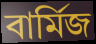
বাৰ্মিজ